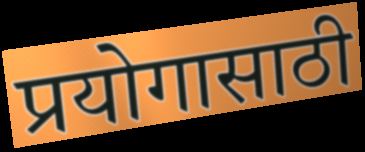
प्रयोगासाठी